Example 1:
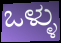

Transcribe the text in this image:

ಒಳ್ಳು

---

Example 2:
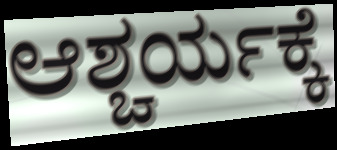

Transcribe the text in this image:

ಆಶ್ಚರ್ಯಕ್ಕೆ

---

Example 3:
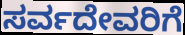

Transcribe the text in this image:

ಸರ್ವದೇವರಿಗೆ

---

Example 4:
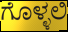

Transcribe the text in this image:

ಗೊಳ್ಳಲಿ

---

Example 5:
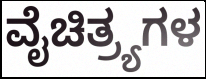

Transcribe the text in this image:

ವೈಚಿತ್ರ್ಯಗಳ